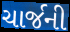
ચાર્જની